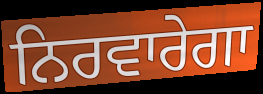
ਨਿਰਵਾਰੇਗਾ